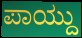
ಪಾಯ್ದು